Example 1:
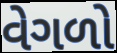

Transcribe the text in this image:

વેગળો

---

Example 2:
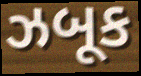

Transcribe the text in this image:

ઝબૂક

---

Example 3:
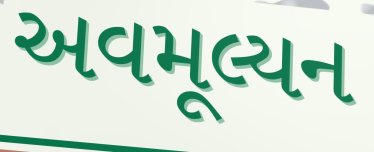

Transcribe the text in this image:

અવમૂલ્યન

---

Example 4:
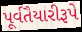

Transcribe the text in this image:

પૂર્વતૈયારીરૂપે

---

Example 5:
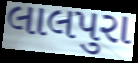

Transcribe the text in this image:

લાલપુરા